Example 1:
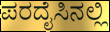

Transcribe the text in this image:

ಪರದೈಸಿನಲ್ಲಿ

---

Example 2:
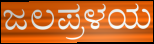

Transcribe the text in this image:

ಜಲಪ್ರಳಯ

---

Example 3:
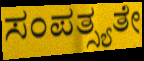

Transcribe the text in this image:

ಸಂಪತ್ಸ್ಯತೇ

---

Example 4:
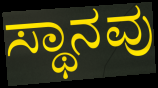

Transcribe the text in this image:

ಸ್ಥಾನವು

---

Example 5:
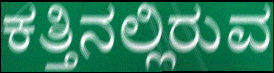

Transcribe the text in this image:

ಕತ್ತಿನಲ್ಲಿರುವ